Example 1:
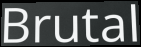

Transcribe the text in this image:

Brutal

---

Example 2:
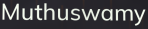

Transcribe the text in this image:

Muthuswamy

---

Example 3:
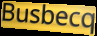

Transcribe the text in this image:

Busbecq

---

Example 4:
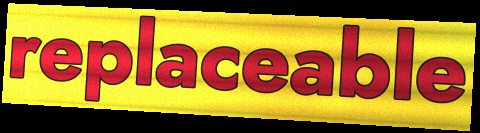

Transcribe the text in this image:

replaceable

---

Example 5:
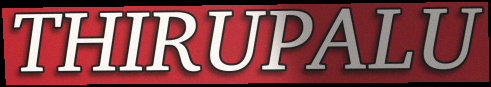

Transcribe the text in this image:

THIRUPALU